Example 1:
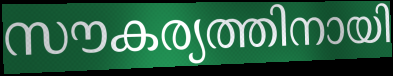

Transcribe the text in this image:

സൗകര്യത്തിനായി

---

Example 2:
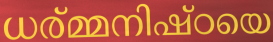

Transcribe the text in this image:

ധര്മ്മനിഷ്ഠയെ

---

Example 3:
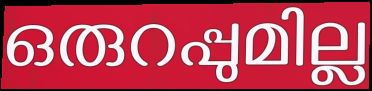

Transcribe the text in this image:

ഒരുറപ്പുമില്ല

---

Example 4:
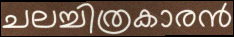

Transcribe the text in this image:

ചലച്ചിത്രകാരൻ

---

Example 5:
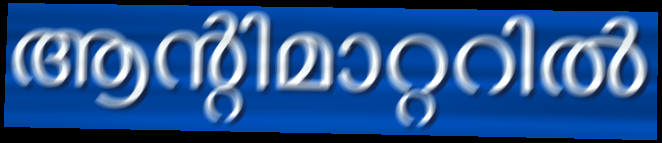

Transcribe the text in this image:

ആന്റിമാറ്ററിൽ